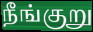
நீங்குறு